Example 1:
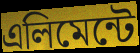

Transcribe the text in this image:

এলিমেন্টে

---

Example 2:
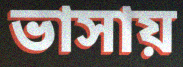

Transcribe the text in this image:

ভাসায়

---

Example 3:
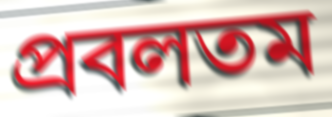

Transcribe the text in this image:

প্রবলতম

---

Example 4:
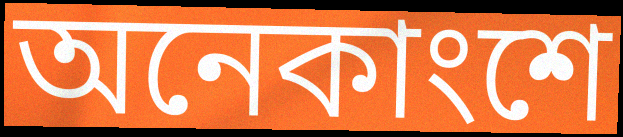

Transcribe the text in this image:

অনেকাংশে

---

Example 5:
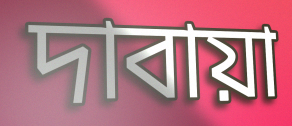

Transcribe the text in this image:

দাবায়া